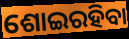
ଶୋଇରହିବା